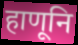
हाणूनि